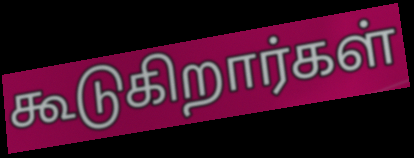
கூடுகிறார்கள்